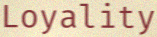
Loyality